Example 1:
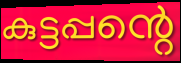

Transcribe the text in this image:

കുട്ടപ്പന്റെ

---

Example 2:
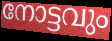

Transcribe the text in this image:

നോട്ടവും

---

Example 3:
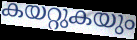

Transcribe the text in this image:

കയറ്റുകയും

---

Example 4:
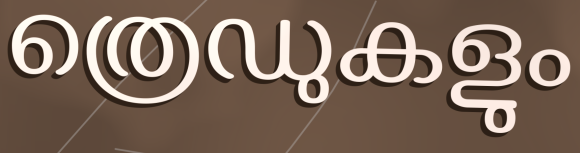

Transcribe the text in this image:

ത്രെഡുകളും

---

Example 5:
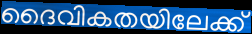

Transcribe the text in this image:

ദൈവികതയിലേക്ക്